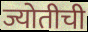
ज्योतीची